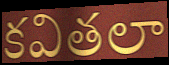
కవితలా